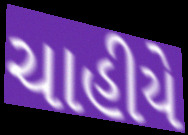
ચાહીયે